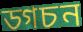
ডগচন